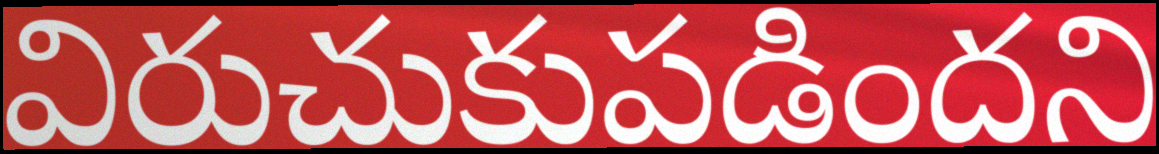
విరుచుకుపడిందని